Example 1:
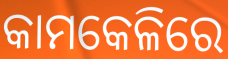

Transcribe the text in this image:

କାମକେଳିରେ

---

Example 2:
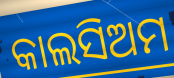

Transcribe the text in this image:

କାଲସିଅମ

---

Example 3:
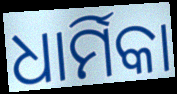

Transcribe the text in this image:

ଧାର୍ମିକା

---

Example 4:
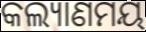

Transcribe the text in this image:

କଲ୍ୟାଣମୟ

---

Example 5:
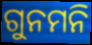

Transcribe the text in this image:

ଗୁନମନି